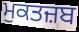
ਮੁਕਤਜ਼ਬ